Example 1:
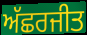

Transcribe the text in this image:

ਅੱਛਰਜੀਤ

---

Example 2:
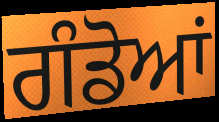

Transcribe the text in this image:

ਗੰਡੋਆਂ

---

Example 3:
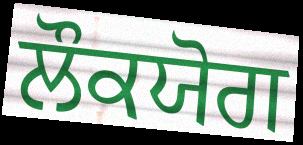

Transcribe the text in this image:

ਲੌਕਯੋਗ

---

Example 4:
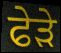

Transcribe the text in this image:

ਫੇੜੇ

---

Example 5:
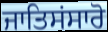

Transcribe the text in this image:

ਜਾਤਿਸਂਸਾਰੋ